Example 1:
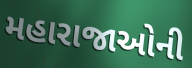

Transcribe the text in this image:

મહારાજાઓની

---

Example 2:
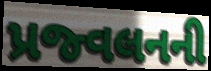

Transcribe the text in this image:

પ્રજ્વલનની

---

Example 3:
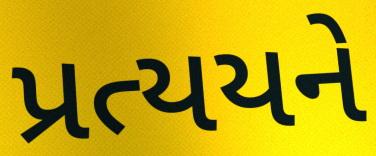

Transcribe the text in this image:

પ્રત્યયને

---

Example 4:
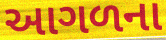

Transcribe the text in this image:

આગળના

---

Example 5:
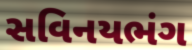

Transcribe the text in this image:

સવિનયભંગ